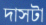
দাসটা